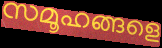
സമൂഹങ്ങളെ